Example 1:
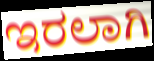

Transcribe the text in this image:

ಇರಲಾಗಿ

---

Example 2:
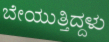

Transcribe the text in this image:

ಬೇಯುತ್ತಿದ್ದಳು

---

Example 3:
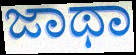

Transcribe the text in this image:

ಜಾಥಾ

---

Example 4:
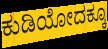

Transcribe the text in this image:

ಕುಡಿಯೋದಕ್ಕೂ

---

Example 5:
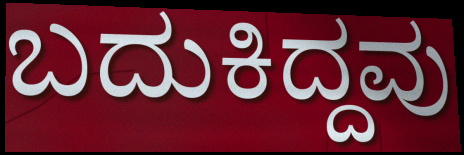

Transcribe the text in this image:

ಬದುಕಿದ್ದವು